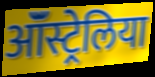
ऑॅस्ट्रेलिया